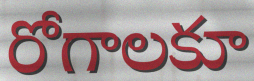
రోగాలకూ